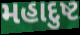
મહાદુષ્ટ